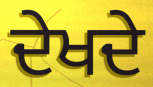
ਦੇਖਦੇ